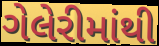
ગેલેરીમાંથી